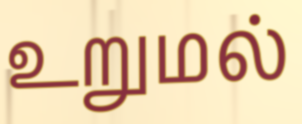
உறுமல்